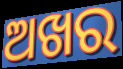
ଅଖର